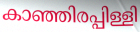
കാഞ്ഞിരപ്പിള്ളി